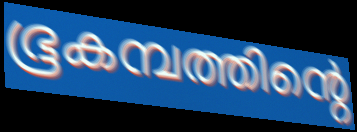
ഭൂകമ്പത്തിന്റെ